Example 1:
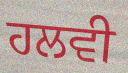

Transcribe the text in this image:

ਹਲਵੀ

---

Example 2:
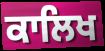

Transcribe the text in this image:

ਕਾਲਿਖ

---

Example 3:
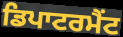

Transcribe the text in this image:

ਡਿਪਾਟਰਮੈਂਟ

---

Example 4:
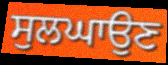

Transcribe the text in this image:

ਸੁਲਘਾਉਣ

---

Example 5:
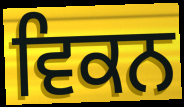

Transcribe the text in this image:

ਵਿਕਨ